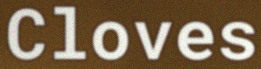
Cloves